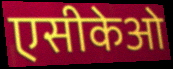
एसीकेओ